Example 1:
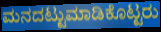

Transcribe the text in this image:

ಮನದಟ್ಟುಮಾಡಿಕೊಟ್ಟರು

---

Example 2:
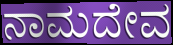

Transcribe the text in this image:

ನಾಮದೇವ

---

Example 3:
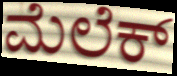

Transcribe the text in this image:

ಮೆಲೆಕ್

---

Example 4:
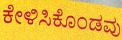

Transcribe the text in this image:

ಕೇಳಿಸಿಕೊಂಡವು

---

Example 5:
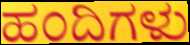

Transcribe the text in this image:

ಹಂದಿಗಳು